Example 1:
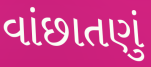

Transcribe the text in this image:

વાંછાતણું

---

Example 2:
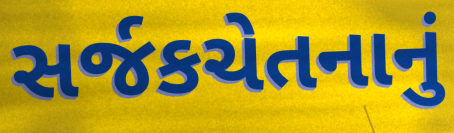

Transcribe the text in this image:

સર્જકચેતનાનું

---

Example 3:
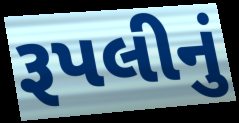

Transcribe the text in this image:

રૂપલીનું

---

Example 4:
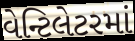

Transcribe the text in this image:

વેન્ટિલેટરમાં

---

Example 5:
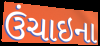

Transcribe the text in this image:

ઉંચાઇના